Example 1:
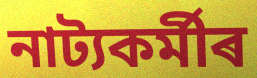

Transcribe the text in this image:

নাট্যকৰ্মীৰ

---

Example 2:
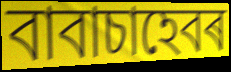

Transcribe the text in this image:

বাবাচাহেবৰ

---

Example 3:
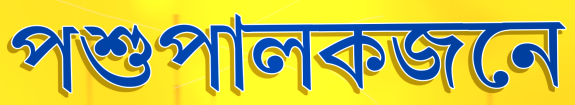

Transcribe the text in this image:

পশুপালকজনে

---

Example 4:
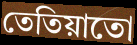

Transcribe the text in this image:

তেতিয়াতো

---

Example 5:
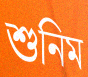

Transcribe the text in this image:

শুনিম